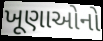
ખૂણાઓનો